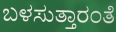
ಬಳಸುತ್ತಾರಂತೆ